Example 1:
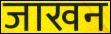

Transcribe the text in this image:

जाखन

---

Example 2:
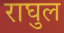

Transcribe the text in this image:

राघुल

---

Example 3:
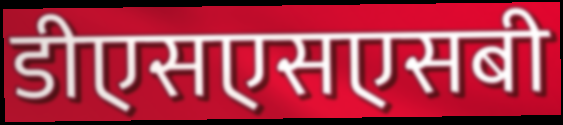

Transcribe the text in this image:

डीएसएसएसबी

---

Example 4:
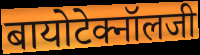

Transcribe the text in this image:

बायोटेक्नॉलजी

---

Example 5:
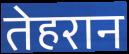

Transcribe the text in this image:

तेहरान